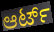
ಆರ್ಟ್